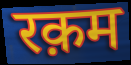
रक़म